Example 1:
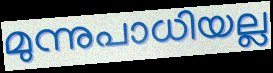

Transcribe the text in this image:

മുന്നുപാധിയല്ല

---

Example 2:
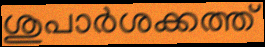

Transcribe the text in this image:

ശുപാർശക്കത്ത്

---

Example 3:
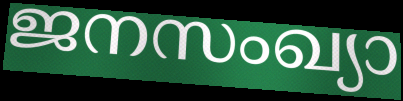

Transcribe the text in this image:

ജനസംഖ്യാ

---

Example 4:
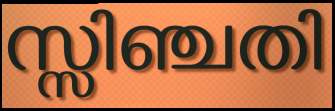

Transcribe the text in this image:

സ്സിഞ്ചതി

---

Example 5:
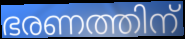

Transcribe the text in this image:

ഭരണത്തിന്